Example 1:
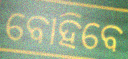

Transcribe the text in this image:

ବୋହିବେ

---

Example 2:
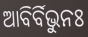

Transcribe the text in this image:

ଆବିର୍ବିଭୁନଃ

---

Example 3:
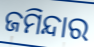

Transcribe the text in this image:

ଜମିନ୍ଦାର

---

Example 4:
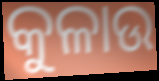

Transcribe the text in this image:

କୁଳାଉ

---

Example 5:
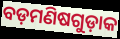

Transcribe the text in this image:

ବଡ଼ମଣିଷଗୁଡ଼ାକ